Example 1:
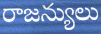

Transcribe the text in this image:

రాజన్యులు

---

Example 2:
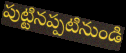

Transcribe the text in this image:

పుట్టినప్పటినుండి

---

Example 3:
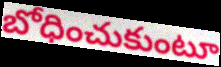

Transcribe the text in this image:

బోధించుకుంటూ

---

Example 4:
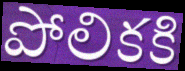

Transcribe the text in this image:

పోలికకి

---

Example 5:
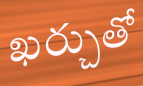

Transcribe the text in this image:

ఖర్చుతో